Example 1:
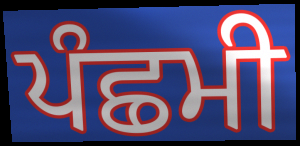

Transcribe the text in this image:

ਪੰਛਮੀ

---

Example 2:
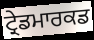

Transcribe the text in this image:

ਟ੍ਰੇਡਮਾਰਕਡ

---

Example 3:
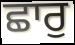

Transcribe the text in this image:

ਛਾਰੁ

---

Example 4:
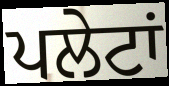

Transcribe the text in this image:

ਪਲੇਟਾਂ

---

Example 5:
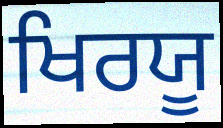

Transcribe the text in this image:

ਖਿਰਯੂ